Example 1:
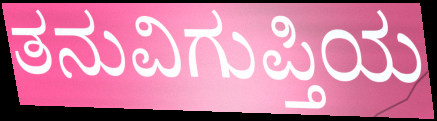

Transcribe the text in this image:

ತನುವಿಗುಪ್ತಿಯ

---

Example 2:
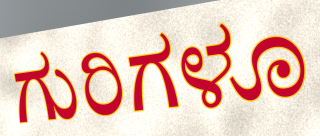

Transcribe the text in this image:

ಗುರಿಗಳೂ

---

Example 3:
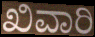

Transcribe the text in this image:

ಖಿವಾರಿ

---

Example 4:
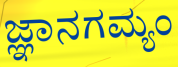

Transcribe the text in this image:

ಜ್ಞಾನಗಮ್ಯಂ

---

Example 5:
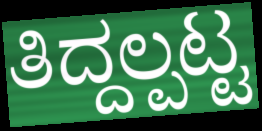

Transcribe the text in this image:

ತಿದ್ದಲ್ಪಟ್ಟ